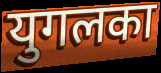
युगलका